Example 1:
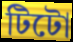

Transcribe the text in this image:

টিটো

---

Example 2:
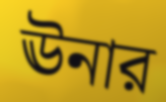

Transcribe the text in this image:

ঊনার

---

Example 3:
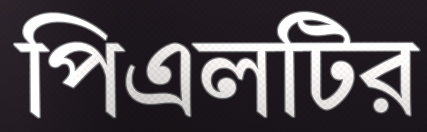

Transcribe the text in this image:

পিএলটির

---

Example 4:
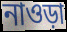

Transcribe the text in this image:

নাওড়া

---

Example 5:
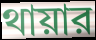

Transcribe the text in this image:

থায়ার